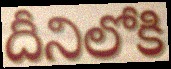
దీనిలోకి